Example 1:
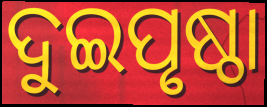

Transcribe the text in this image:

ଦୁଇପୃଷ୍ଠା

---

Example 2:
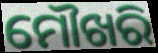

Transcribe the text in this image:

ମୌଖରି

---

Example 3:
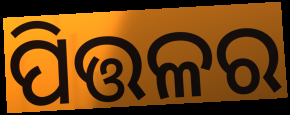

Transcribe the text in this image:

ପିତ୍ତଳର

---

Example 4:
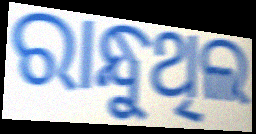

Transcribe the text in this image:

ରାନ୍ଧୁଥିଲ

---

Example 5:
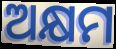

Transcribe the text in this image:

ଅକ୍ଷମ